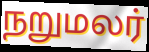
நறுமலர்